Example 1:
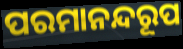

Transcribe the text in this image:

ପରମାନନ୍ଦରୂପ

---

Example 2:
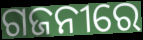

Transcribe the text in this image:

ଗଜନୀରେ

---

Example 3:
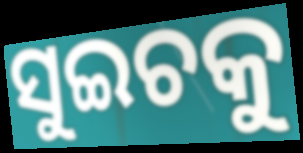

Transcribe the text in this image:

ସୁଇଚକୁ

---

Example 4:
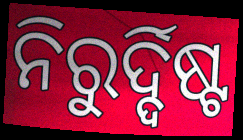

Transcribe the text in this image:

ନିରୁର୍ଦ୍ଦିଷ୍ଟ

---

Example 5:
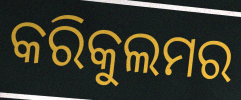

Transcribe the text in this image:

କରିକୁଲମର